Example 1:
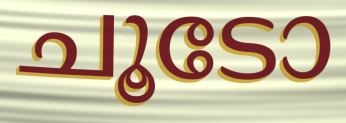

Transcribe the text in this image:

ചൂടോ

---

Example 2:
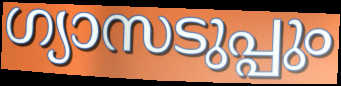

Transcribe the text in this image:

ഗ്യാസടുപ്പും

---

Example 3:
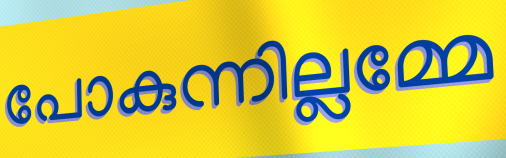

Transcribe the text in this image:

പോകുന്നില്ലമ്മേ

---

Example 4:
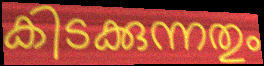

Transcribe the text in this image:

കിടക്കുന്നതും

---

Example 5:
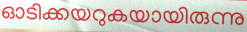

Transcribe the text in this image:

ഓടിക്കയറുകയായിരുന്നു